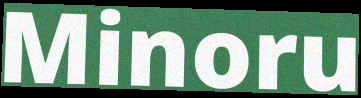
Minoru